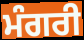
ਮੰਗਰੀ